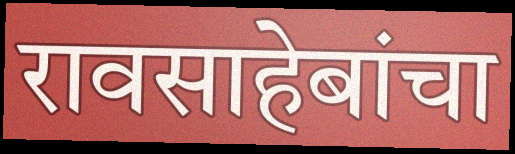
रावसाहेबांचा